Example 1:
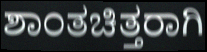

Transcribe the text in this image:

ಶಾಂತಚಿತ್ತರಾಗಿ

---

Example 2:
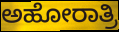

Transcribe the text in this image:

ಅಹೋರಾತ್ರಿ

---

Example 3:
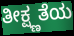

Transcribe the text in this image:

ತೀಕ್ಷ್ಣತೆಯ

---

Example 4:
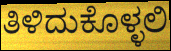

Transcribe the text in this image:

ತಿಳಿದುಕೊಳ್ಳಲಿ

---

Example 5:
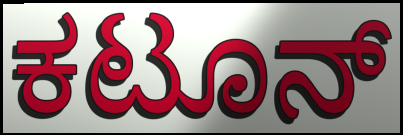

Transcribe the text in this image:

ಕಟೂನ್